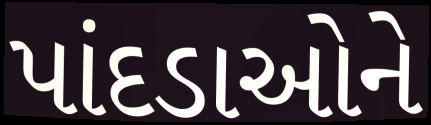
પાંદડાઓને